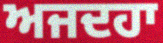
ਅਜਦਹਾ